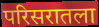
परिसरातला